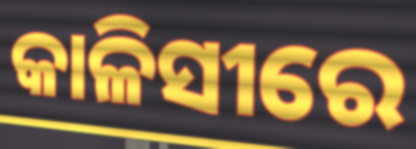
କାଳିସୀରେ